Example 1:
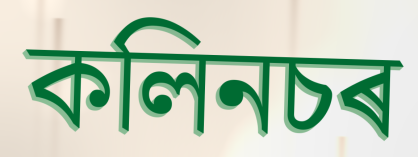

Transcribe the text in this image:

কলিনচৰ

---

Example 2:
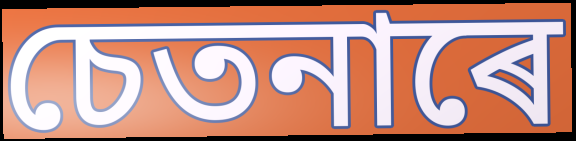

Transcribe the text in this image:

চেতনাৰে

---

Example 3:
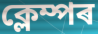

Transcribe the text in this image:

ক্লেম্পৰ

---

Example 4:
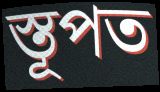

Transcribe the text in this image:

স্তূপত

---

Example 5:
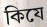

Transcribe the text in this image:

কিযে